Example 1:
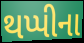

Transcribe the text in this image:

થપ્પીના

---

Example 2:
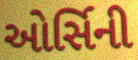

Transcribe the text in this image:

ઓર્સિની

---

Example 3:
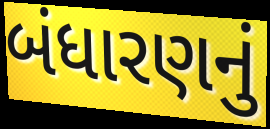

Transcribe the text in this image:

બંધારણનું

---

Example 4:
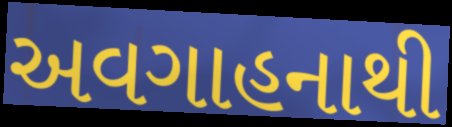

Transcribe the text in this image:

અવગાહનાથી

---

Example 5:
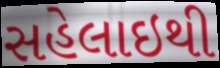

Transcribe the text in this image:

સહેલાઇથી